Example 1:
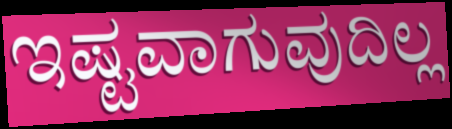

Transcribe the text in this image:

ಇಷ್ಟವಾಗುವುದಿಲ್ಲ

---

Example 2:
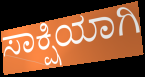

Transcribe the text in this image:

ಸಾಕ್ಷಿಯಾಗಿ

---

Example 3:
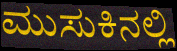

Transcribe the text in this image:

ಮುಸುಕಿನಲ್ಲಿ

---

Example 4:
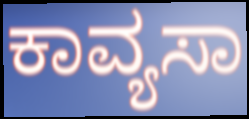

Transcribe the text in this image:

ಕಾವ್ಯಸಾ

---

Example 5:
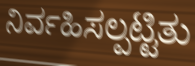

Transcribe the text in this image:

ನಿರ್ವಹಿಸಲ್ಪಟ್ಟಿತು